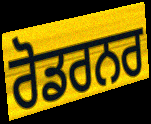
ਰੋਡਰਨਰ